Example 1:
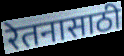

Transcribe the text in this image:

रेतनासाठी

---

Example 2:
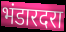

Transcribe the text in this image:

भंडारदरा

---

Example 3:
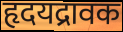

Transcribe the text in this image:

हृदयद्रावक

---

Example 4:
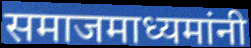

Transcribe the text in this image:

समाजमाध्यमांनी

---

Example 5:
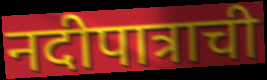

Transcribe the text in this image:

नदीपात्राची